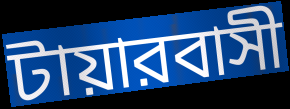
টায়ারবাসী